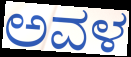
ಅವಳ